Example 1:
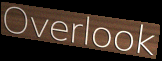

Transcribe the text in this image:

Overlook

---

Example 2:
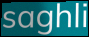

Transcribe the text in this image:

saghli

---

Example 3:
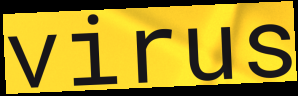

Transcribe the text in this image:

virus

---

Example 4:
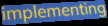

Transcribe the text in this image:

implementing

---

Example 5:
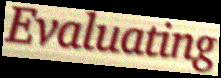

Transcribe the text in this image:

Evaluating